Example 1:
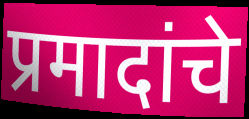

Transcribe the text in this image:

प्रमादांचे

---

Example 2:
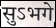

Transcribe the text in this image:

सुऽभगे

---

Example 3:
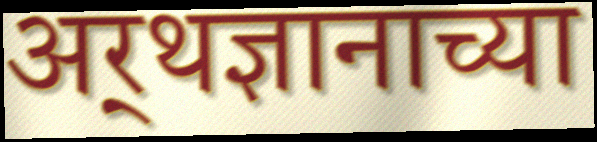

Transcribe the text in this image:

अर्थज्ञानाच्या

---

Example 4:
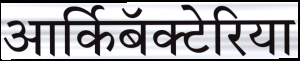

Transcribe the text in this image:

आर्किबॅक्टेरिया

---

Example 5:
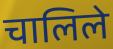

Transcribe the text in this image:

चालिले